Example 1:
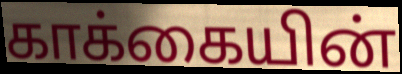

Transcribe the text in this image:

காக்கையின்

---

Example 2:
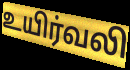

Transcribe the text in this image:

உயிர்வலி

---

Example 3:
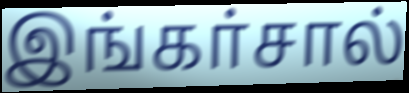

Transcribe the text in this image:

இங்கர்சால்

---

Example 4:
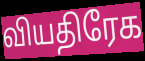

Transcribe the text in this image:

வியதிரேக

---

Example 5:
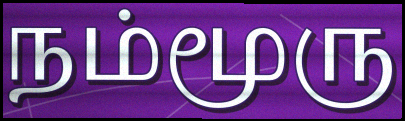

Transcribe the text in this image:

நம்மூரு